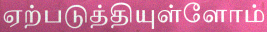
ஏற்படுத்தியுள்ளோம்